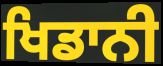
ਖਿਡਾਨੀ